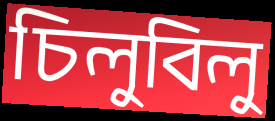
চিলুবিলু